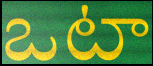
ఒటా